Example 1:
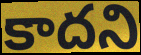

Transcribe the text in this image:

కాదని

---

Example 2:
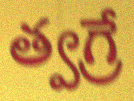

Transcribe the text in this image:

త్వగ్రే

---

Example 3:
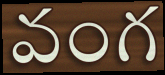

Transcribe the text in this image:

వంగ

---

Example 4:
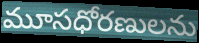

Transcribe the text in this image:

మూసధోరణులను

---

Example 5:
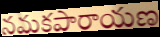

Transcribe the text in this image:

నమకపారాయణ